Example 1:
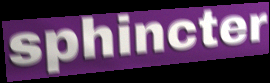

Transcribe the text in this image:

sphincter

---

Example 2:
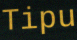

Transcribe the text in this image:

Tipu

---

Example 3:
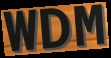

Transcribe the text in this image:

WDM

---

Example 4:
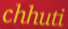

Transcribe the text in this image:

chhuti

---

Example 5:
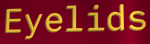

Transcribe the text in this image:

Eyelids